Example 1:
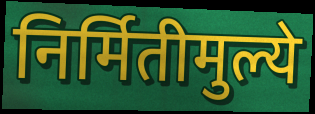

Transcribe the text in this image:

निर्मितीमुल्ये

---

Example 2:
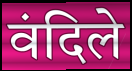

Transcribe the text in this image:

वंदिले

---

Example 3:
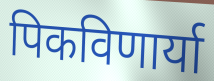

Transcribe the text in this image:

पिकविणार्या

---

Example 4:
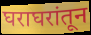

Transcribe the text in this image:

घराघरांतून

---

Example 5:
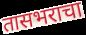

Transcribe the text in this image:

तासभराचा